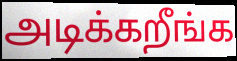
அடிக்கறீங்க